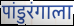
पांडुरंगाला